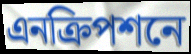
এনক্রিপশনে